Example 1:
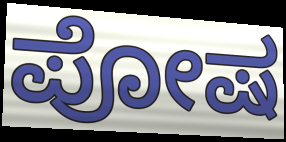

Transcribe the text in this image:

ಪೋಷ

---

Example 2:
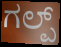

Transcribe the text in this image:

ಗಲ್ಪ್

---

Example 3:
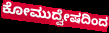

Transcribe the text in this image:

ಕೋಮುದ್ವೇಷದಿಂದ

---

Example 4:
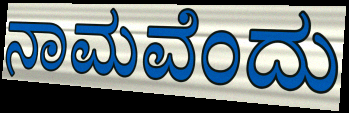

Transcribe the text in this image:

ನಾಮವೆಂದು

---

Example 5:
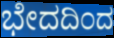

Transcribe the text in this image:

ಭೇದದಿಂದ